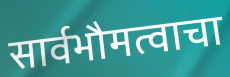
सार्वभौमत्वाचा